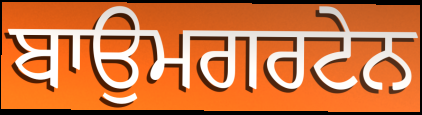
ਬਾਉਮਗਰਟੇਨ